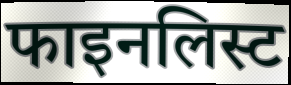
फाइनलिस्ट